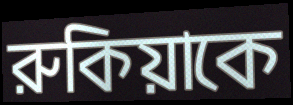
রুকিয়াকে